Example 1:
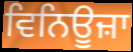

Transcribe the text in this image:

ਵਿਨਿਊਜ਼ਾ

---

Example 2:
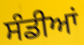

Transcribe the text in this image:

ਸੰਡੀਆਂ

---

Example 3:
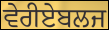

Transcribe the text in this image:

ਵੇਰੀਏਬਲਜ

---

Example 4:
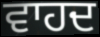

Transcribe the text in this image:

ਵਾਹਦ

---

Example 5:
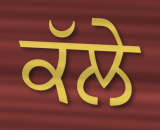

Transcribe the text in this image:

ਕੱਲੇ